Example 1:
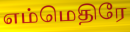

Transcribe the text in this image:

எம்மெதிரே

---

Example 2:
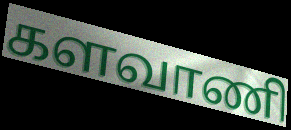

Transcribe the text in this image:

களவாணி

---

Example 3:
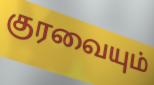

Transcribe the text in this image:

குரவையும்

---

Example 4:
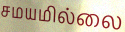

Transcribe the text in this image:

சமயமில்லை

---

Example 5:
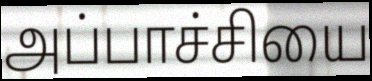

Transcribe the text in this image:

அப்பாச்சியை